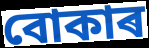
বোকাৰ